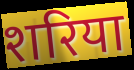
शरिया